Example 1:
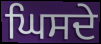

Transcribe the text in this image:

ਘਿਸਦੇ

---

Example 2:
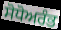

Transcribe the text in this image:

ਸੋਧੋਅਰੰਭ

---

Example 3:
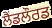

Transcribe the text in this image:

ਲੈਂਡਲੌਰਡ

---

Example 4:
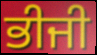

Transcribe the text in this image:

ਭੀਜੀ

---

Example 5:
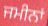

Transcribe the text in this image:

ਜਮੀਨਾਂ